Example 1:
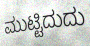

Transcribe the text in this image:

ಮುಟ್ಟಿದುದು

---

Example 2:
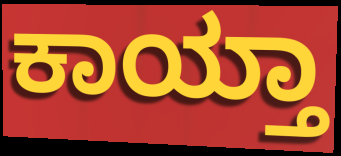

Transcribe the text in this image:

ಕಾಯ್ತಾ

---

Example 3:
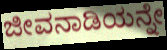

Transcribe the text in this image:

ಜೀವನಾಡಿಯನ್ನೇ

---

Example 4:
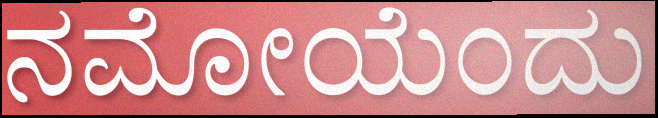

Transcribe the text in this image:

ನಮೋಯೆಂದು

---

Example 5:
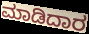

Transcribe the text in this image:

ಮಾಡಿದಾರ